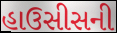
હાઉસીસની